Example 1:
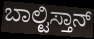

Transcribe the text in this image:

ಬಾಲ್ಟಿಸ್ತಾನ್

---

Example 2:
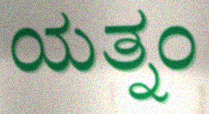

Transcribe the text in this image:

ಯತ್ನಂ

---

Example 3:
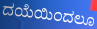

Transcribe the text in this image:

ದಯೆಯಿಂದಲೂ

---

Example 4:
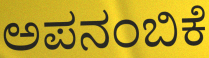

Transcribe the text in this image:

ಅಪನಂಬಿಕೆ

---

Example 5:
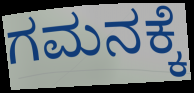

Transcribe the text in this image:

ಗಮನಕ್ಕೆ